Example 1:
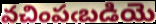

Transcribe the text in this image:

వచింపఁబడియె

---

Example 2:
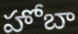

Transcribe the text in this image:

హోబా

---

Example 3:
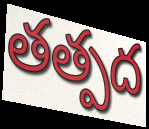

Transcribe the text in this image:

తత్పద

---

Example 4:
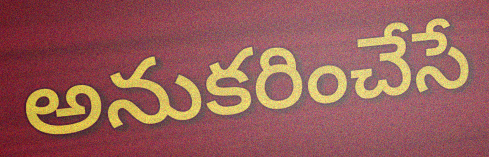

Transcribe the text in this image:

అనుకరించేసే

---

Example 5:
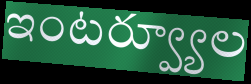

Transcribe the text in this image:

ఇంటర్వ్యూల